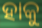
ହାକୁ